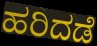
ಹರಿದಡೆ